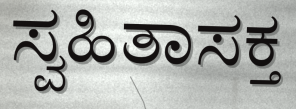
ಸ್ವಹಿತಾಸಕ್ತ